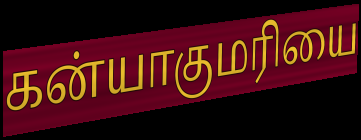
கன்யாகுமரியை